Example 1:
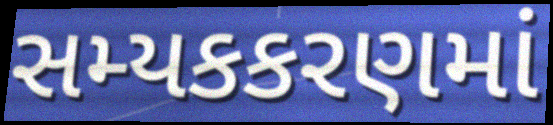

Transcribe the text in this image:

સમ્યકકરણમાં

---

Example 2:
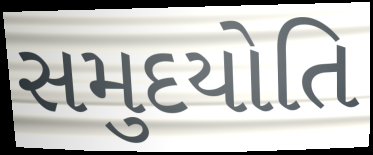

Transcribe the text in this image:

સમુદયોતિ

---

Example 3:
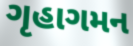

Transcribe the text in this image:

ગૃહાગમન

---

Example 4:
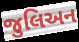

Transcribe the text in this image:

જુલિઅન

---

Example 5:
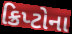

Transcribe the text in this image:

ક્રિપ્ટોના